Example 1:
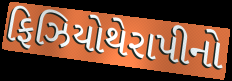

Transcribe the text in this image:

ફિઝિયોથેરાપીનો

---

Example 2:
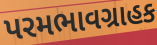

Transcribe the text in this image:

પરમભાવગ્રાહક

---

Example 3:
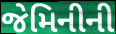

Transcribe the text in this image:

જેમિનીની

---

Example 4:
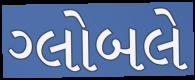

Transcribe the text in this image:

ગ્લોબલે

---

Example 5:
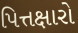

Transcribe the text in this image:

પિત્તક્ષારો